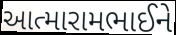
આત્મારામભાઈને